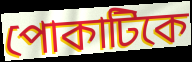
পোকাটিকে